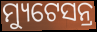
ମ୍ୟୁଟେସନ୍ର